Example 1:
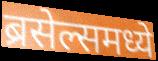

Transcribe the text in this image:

ब्रसेल्समध्ये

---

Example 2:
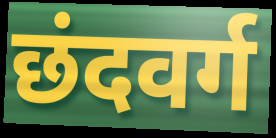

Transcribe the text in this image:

छंदवर्ग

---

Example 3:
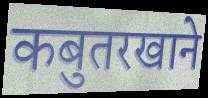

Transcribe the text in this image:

कबुतरखाने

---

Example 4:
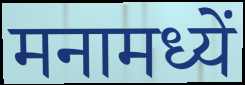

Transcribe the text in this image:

मनामध्यें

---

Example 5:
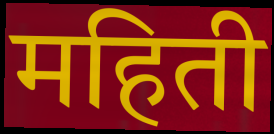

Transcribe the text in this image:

महिती